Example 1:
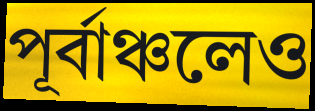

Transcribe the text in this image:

পূর্বাঞ্চলেও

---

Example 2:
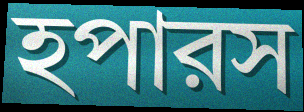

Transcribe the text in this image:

হপারস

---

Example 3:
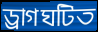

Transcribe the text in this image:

ড্রাগঘটিত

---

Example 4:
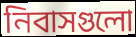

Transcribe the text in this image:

নিবাসগুলো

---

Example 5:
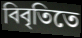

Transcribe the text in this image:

বিবৃতিতে